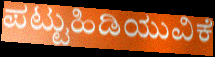
ಪಟ್ಟುಹಿಡಿಯುವಿಕೆ